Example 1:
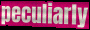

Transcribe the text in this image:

peculiarly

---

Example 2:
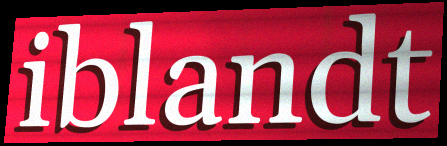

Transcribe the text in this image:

iblandt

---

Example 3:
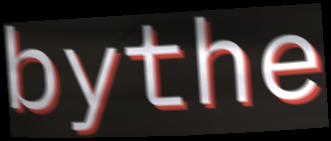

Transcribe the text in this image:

bythe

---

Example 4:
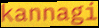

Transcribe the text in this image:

kannagi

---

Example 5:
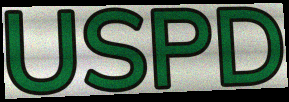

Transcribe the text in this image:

USPD